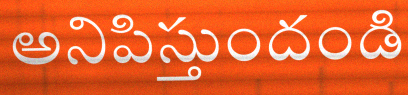
అనిపిస్తుందండి